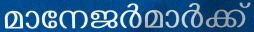
മാനേജർമാർക്ക്